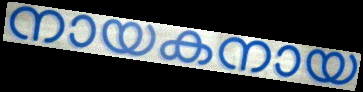
നായകനായ